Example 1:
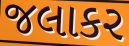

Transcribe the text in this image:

જલાકર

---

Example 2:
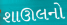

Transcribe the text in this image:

શાઊલનો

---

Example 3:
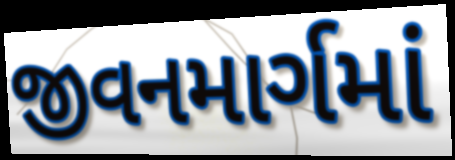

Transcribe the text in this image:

જીવનમાર્ગમાં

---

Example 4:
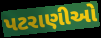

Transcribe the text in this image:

પટરાણીઓ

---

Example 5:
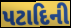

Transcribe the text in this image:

પટાદિની